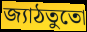
জ্যাঠতুতো